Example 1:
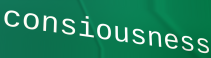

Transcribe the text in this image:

consiousness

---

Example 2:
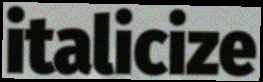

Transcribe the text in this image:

italicize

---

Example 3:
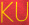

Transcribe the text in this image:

KU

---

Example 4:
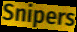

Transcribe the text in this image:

Snipers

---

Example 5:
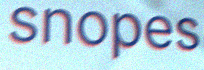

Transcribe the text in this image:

snopes